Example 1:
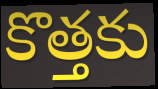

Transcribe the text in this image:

కొత్తకు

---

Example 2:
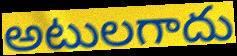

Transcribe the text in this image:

అటులగాదు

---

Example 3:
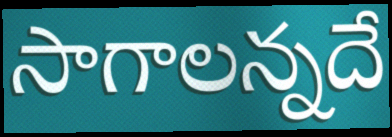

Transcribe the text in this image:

సాగాలన్నదే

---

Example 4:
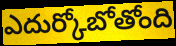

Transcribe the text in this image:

ఎదుర్కోబోతోంది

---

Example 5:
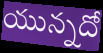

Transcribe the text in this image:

యున్నదో